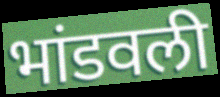
भांडवली